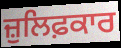
ਜ਼ੁਲਿਫ਼ਕਾਰ